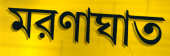
মরণাঘাত